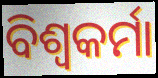
ବିଶ୍ବକର୍ମା